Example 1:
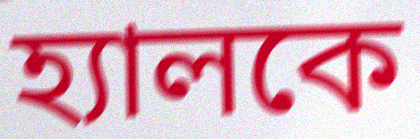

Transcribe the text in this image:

হ্যালকে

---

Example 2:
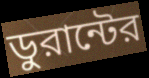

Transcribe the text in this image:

ডুরান্টের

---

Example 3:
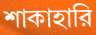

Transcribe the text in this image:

শাকাহারি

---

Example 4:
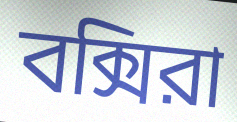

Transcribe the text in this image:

বক্সিরা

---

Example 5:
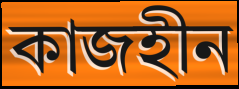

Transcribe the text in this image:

কাজহীন